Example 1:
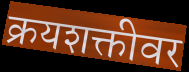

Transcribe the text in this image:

क्रयशक्तीवर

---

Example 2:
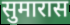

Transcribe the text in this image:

सुमारास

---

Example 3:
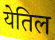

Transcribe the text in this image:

येतिल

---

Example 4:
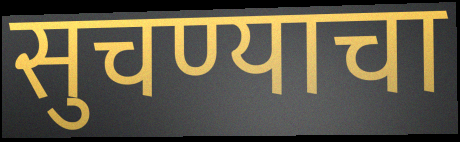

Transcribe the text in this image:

सुचण्याचा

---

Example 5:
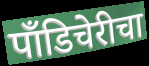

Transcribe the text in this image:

पाँडिचेरीचा